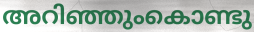
അറിഞ്ഞുംകൊണ്ടു